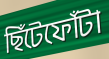
ছিঁটেফোঁটা